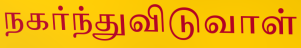
நகர்ந்துவிடுவாள்